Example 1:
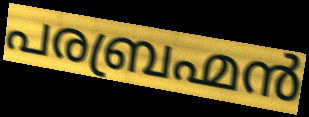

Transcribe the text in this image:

പരബ്രഹ്മൻ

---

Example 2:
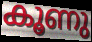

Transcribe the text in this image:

കൂണു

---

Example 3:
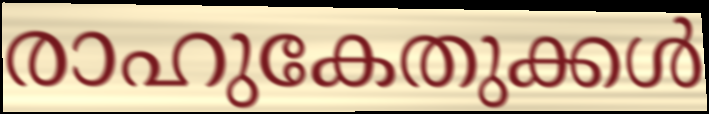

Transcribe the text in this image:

രാഹുകേതുക്കൾ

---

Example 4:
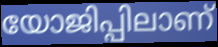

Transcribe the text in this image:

യോജിപ്പിലാണ്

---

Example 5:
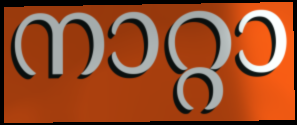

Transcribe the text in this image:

നാറ്റാ